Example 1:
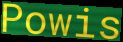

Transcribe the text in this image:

Powis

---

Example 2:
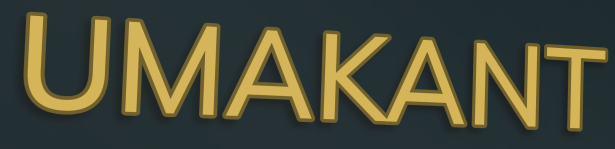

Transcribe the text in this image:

UMAKANT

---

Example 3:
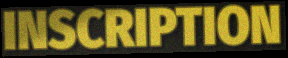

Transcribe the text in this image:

INSCRIPTION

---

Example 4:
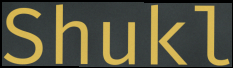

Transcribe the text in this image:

Shukl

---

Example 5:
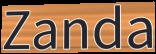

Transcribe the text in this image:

Zanda